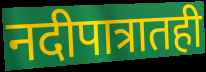
नदीपात्रातही